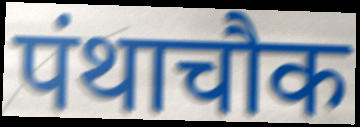
पंथाचौक